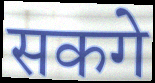
सकगे